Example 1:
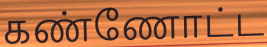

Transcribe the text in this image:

கண்ணோட்ட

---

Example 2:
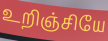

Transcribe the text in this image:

உறிஞ்சியே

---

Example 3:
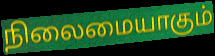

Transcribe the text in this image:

நிலைமையாகும்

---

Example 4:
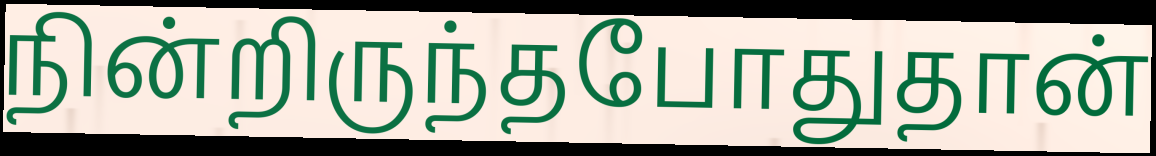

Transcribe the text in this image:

நின்றிருந்தபோதுதான்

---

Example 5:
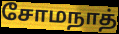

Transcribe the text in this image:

சோமநாத்